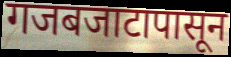
गजबजाटापासून